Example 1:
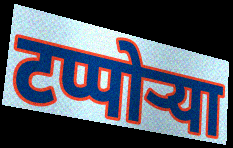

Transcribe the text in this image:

टप्पोऱ्या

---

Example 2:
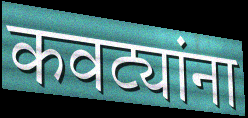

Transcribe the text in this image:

कवट्यांना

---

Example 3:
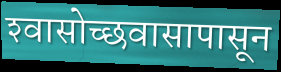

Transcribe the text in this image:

श्वासोच्छवासापासून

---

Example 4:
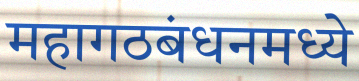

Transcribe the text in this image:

महागठबंधनमध्ये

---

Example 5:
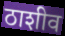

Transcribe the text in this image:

ठाशीव